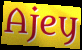
Ajey